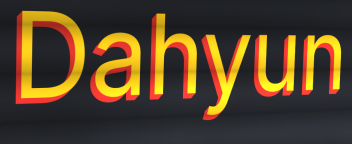
Dahyun